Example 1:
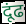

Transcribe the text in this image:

दूंढ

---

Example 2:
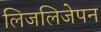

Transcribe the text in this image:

लिजलिजेपन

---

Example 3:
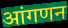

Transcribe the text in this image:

आंगणन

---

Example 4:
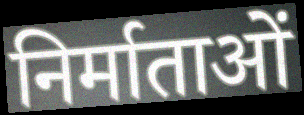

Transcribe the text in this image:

निर्माताओं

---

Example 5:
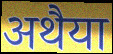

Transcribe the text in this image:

अथैया